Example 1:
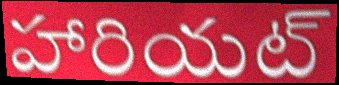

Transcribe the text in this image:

హారియట్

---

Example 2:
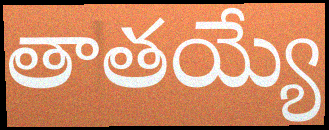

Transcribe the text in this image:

తాతయ్యే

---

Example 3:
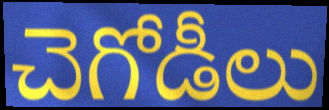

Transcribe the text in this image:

చెగోడీలు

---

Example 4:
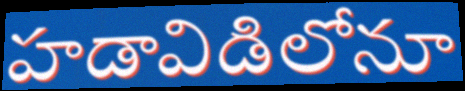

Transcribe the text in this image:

హడావిడిలోనూ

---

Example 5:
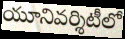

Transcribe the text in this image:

యూనివర్శిటీలో